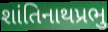
શાંતિનાથપ્રભુ